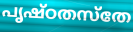
പൃഷ്ഠതസ്തേ